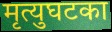
मृत्युघटका